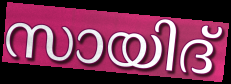
സായിദ്